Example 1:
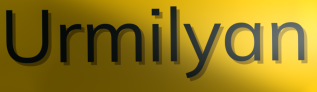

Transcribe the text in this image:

Urmilyan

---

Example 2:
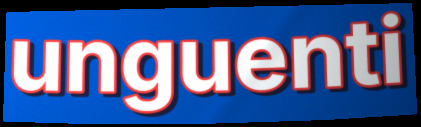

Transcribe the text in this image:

unguenti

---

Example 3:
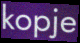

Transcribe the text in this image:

kopje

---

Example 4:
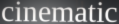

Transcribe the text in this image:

cinematic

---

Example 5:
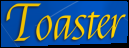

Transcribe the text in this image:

Toaster